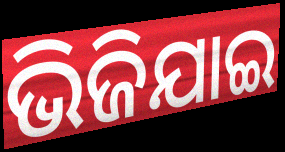
ଭିଜିଯାଇ